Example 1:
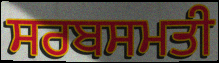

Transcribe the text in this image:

ਸਰਬਸਮਤੀ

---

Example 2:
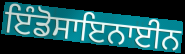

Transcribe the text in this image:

ਇੰਡੋਸਾਇਨਾਈਨ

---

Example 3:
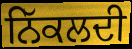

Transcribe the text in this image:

ਨਿੱਕਲਦੀ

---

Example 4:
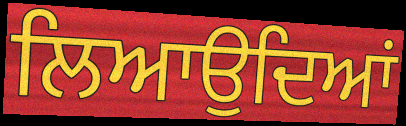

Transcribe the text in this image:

ਲਿਆਉਦਿਆਂ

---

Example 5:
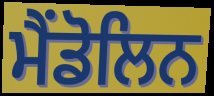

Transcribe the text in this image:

ਮੈਂਡੋਲਿਨ